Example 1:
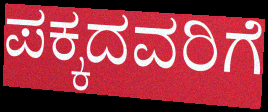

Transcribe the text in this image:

ಪಕ್ಕದವರಿಗೆ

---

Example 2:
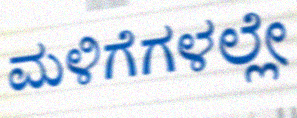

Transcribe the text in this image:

ಮಳಿಗೆಗಳಲ್ಲೇ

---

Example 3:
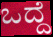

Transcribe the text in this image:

ಒದ್ದೆ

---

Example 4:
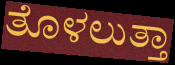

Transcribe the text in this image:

ತೊಳಲುತ್ತಾ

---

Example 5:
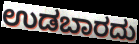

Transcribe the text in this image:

ಉಡಬಾರದು